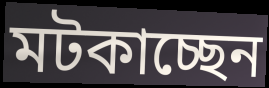
মটকাচ্ছেন